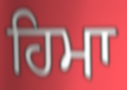
ਹਿਮਾ